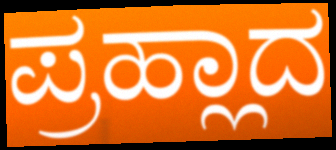
ಪ್ರಹ್ಲಾದ